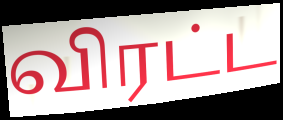
விரட்ட